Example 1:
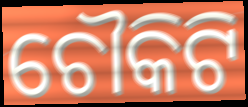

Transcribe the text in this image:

ଚୌକିଟି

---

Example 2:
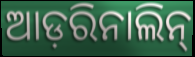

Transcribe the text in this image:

ଆଡ଼ରିନାଲିନ୍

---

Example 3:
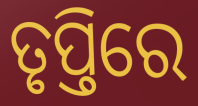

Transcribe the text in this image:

ତୃପ୍ତିରେ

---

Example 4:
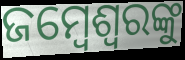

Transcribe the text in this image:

ଜମ୍ବେଶ୍ୱରଙ୍କୁ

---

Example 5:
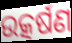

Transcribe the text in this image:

ଉତ୍କର୍ଷଣ